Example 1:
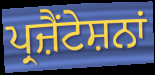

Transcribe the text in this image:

ਪ੍ਰਜ਼ੈਂਟੇਸ਼ਨਾਂ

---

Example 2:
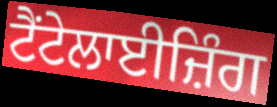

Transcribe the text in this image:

ਟੈਂਟੇਲਾਈਜ਼ਿੰਗ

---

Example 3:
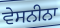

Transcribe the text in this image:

ਵੇਸਨੀਨਾ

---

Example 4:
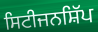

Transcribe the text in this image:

ਸਿਟੀਜਨਸ਼ਿੱਪ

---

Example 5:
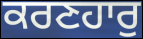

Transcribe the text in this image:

ਕਰਣਹਾਰੁ